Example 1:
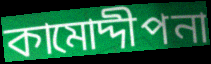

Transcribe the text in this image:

কামোদ্দীপনা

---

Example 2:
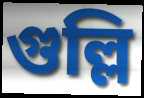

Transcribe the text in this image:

গুল্লি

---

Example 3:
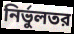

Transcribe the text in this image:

নির্ভুলতর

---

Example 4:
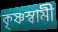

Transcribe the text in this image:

কৃষ্ণস্বামী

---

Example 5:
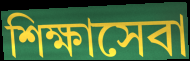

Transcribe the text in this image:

শিক্ষাসেবা